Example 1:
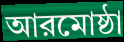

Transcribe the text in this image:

আরমোষ্ঠা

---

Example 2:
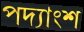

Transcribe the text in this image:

পদ্যাংশ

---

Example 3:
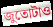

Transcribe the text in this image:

জুতোটাও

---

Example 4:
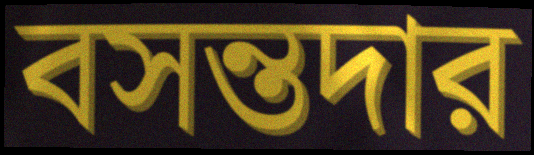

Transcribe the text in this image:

বসন্তদার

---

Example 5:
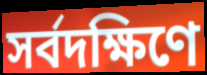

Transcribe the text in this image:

সর্বদক্ষিণে